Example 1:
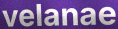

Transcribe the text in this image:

velanae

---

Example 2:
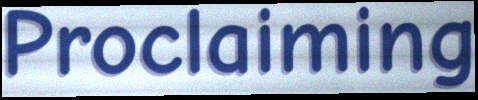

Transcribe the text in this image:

Proclaiming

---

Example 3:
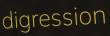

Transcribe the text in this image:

digression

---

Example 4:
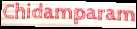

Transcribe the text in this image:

Chidamparam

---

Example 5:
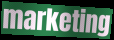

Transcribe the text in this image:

marketing